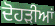
ਦੋਹੜੀਆਂ